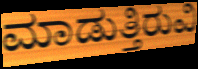
ಮಾಡುತ್ತಿರುವಿ